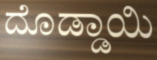
ದೊಡ್ಡಾಯಿ